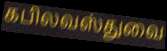
கபிலவஸ்துவை